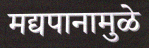
मद्यपानामुळे